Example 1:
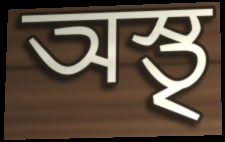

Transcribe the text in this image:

অস্তৃ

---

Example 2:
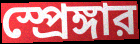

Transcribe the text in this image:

স্প্রেঙ্গার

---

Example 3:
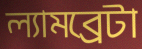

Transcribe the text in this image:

ল্যামব্রেটা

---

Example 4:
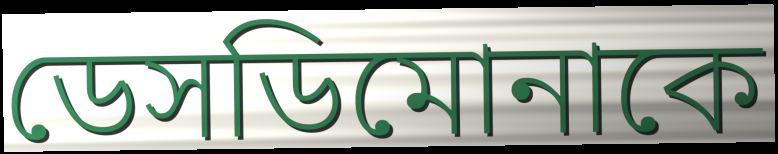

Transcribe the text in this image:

ডেসডিমোনাকে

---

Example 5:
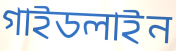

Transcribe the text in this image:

গাইডলাইন